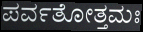
ಪರ್ವತೋತ್ತಮಃ